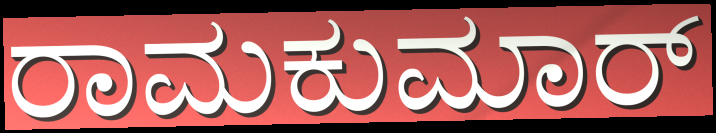
ರಾಮಕುಮಾರ್